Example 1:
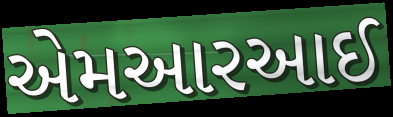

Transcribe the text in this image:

એમઆરઆઈ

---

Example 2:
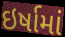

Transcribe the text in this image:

ઇર્ષામાં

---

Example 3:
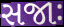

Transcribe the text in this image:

સજાઃ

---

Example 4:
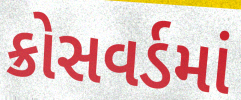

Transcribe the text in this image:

ક્રોસવર્ડમાં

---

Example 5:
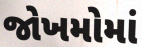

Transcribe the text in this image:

જોખમોમાં